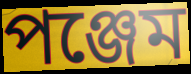
পঞ্জেম